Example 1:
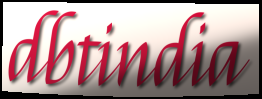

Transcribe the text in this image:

dbtindia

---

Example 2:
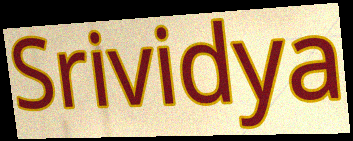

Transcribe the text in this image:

Srividya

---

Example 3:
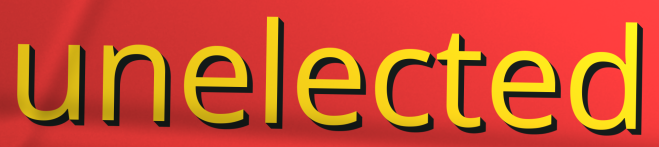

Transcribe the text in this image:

unelected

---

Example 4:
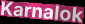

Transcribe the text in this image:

Karnalok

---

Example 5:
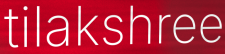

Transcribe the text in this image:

tilakshree